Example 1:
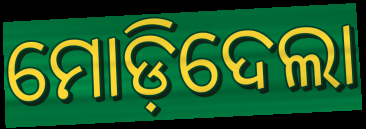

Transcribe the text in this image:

ମୋଡ଼ିଦେଲା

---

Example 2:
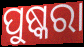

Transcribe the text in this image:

ପୁଷ୍କରା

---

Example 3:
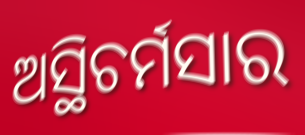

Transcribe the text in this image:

ଅସ୍ଥିଚର୍ମସାର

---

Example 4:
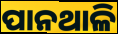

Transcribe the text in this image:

ପାନଥାଳି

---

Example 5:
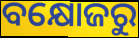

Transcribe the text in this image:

ବକ୍ଷୋଜରୁ